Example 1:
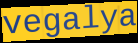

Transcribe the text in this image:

vegalya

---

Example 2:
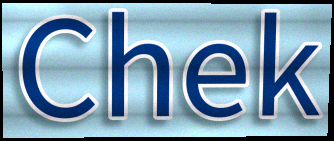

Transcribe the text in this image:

Chek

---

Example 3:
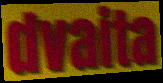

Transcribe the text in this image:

dvaita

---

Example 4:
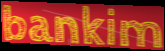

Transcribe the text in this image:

bankim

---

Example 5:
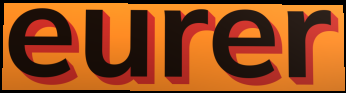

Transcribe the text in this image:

eurer